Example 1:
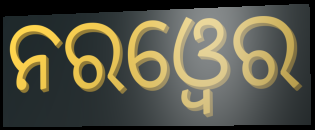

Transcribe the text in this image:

ନରଓ୍ବେର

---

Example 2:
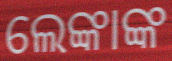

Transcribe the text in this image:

ଲେଙ୍କାଙ୍କ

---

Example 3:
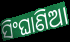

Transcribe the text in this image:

ସିଂଘାଣିଆ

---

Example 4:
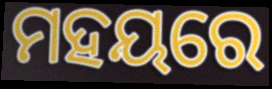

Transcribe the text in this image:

ମହୟରେ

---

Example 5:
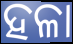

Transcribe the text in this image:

ହଳା